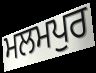
ਮਲਮਪੁਰ